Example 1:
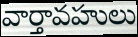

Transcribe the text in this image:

వార్తావహులు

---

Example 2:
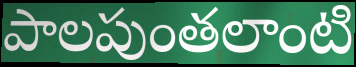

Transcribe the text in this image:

పాలపుంతలాంటి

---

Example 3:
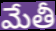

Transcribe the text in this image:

మేతీ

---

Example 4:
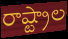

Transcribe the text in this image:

రాష్ట్రాల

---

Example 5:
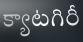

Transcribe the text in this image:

క్యాటగిరీ